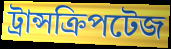
ট্রান্সক্রিপটেজ